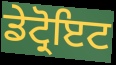
ਡੇਟ੍ਰੋਇਟ